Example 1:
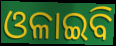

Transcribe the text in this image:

ଓଳାଇବି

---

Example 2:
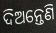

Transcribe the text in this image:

ଦିଅନ୍ତେଣି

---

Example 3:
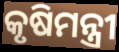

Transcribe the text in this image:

କୃଷିମନ୍ତ୍ରୀ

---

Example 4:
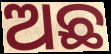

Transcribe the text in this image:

ଅଛ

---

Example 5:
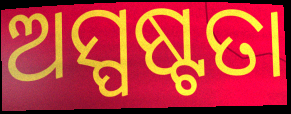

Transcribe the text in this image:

ଅସ୍ପଷ୍ଟତା